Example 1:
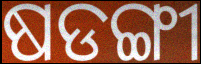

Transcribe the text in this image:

ଷଡଙ୍ଗୀ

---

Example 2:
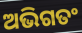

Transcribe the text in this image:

ଅଭିଗତଂ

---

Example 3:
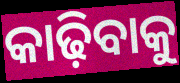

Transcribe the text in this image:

କାଢ଼ିବାକୁ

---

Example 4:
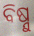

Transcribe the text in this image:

ବିଷ୍ନୁ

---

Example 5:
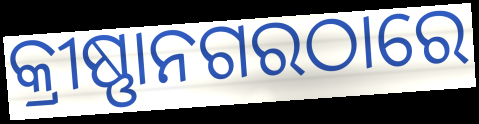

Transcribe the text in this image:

କ୍ରୀଷ୍ଣାନଗରଠାରେ